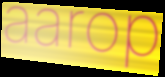
aarop